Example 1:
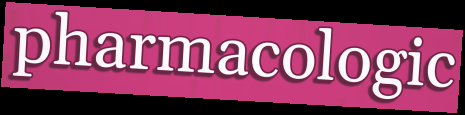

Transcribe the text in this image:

pharmacologic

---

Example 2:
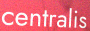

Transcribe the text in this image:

centralis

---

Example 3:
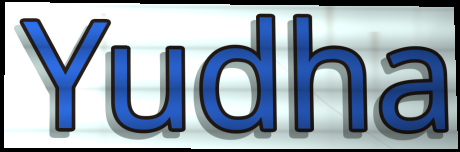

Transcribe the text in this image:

Yudha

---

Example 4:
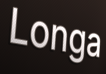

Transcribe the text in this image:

Longa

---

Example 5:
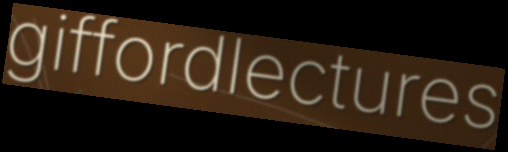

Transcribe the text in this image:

giffordlectures